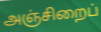
அஞ்சிறைப்